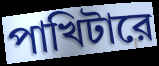
পাখিটারে